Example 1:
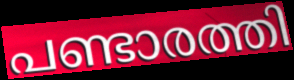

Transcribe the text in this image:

പണ്ടാരത്തി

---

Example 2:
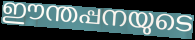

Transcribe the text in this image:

ഈന്തപ്പനയുടെ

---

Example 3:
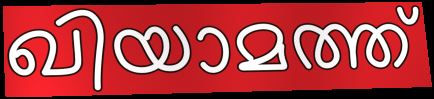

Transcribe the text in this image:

ഖിയാമത്ത്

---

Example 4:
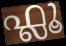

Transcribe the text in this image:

ഫ്ലൂ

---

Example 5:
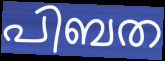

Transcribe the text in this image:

പിബത